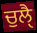
ਚੁਲੈੑ